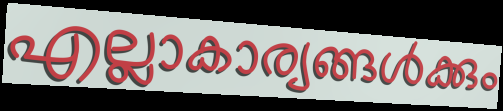
എല്ലാകാര്യങ്ങൾക്കും